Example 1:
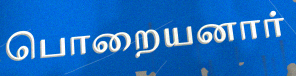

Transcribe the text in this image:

பொறையனார்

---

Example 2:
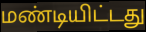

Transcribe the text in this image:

மண்டியிட்டது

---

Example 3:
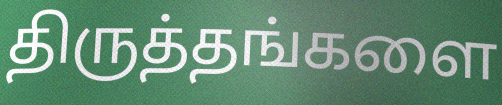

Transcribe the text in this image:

திருத்தங்களை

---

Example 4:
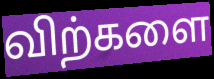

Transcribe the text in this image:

விற்களை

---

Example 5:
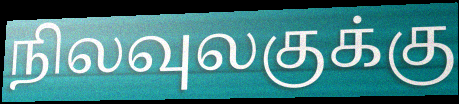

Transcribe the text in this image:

நிலவுலகுக்கு